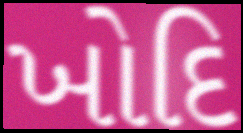
ખોદિ